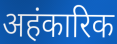
अहंकारिक